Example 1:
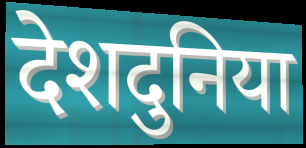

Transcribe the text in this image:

देशदुनिया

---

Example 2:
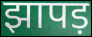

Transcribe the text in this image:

झापड़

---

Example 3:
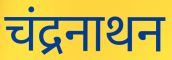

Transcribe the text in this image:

चंद्रनाथन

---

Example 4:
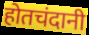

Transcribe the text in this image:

होतचंदानी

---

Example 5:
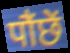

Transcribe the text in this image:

पौंछें